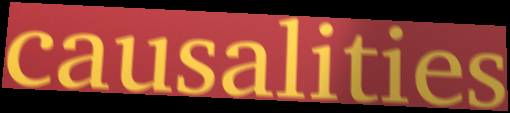
causalities